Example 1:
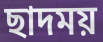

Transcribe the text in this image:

ছাদময়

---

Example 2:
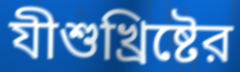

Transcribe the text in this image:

যীশুখ্রিষ্টের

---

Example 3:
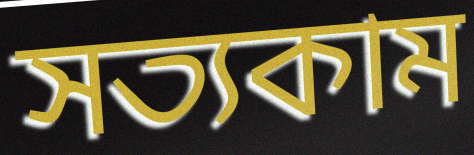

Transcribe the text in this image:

সত্যকাম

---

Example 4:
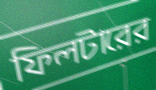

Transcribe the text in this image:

ফিলটারের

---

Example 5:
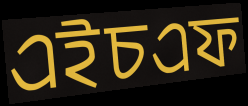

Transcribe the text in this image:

এইচএফ